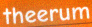
theerum